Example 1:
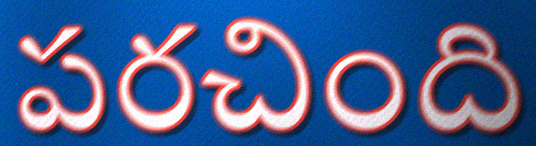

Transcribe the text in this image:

పరచింది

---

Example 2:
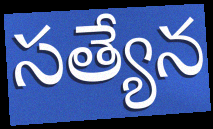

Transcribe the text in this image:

సత్యేన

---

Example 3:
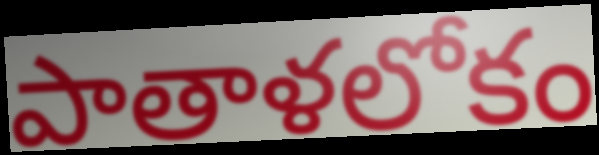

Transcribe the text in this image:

పాతాళలోకం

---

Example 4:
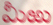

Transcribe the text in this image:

మీఱు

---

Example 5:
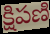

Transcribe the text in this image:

క్షిపణి